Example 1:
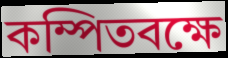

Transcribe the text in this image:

কম্পিতবক্ষে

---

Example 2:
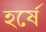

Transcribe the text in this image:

হর্ষে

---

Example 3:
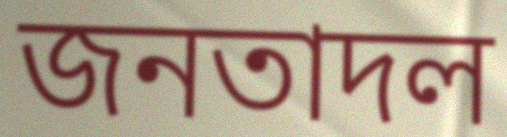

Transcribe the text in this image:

জনতাদল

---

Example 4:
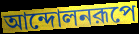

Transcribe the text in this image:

আন্দোলনরূপে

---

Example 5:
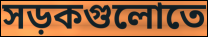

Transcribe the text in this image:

সড়কগুলোতে